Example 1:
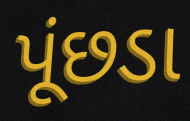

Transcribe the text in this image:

પૂંછડા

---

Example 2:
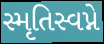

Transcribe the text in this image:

સ્મૃતિસ્વપ્ને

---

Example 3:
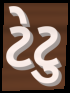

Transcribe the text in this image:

ટેટુ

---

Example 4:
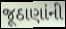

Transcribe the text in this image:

જૂઠાણાંની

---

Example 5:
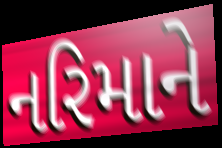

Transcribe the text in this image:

નરિમાને